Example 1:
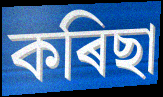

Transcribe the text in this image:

কৰিছা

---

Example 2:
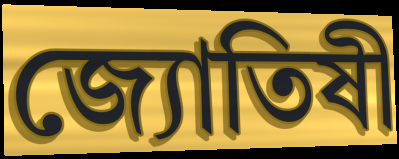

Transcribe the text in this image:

জ্যোতিষী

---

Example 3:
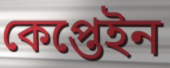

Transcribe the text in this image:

কেপ্তেইন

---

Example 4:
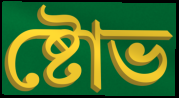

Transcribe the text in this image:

ষ্টোভ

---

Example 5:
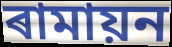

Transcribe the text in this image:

ৰামায়ন